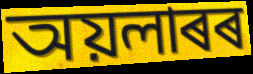
অয়লাৰৰ